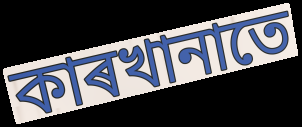
কাৰখানাতে